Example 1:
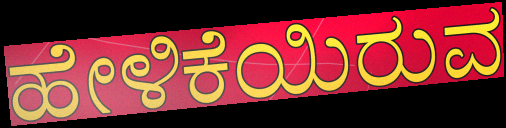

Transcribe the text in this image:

ಹೇಳಿಕೆಯಿರುವ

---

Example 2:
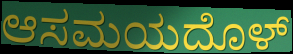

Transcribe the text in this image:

ಆಸಮಯದೊಳ್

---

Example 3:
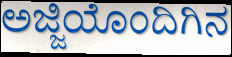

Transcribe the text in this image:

ಅಜ್ಜಿಯೊಂದಿಗಿನ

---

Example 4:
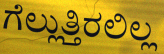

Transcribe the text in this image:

ಗೆಲ್ಲುತ್ತಿರಲಿಲ್ಲ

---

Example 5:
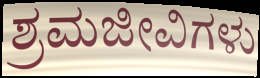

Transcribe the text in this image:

ಶ್ರಮಜೀವಿಗಳು